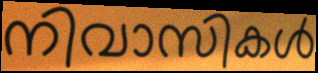
നിവാസികൾ